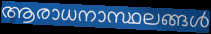
ആരാധനാസ്ഥലങ്ങൾ